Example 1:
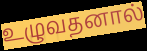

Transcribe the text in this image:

உழுவதனால்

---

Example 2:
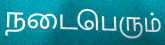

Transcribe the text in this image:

நடைபெரும்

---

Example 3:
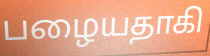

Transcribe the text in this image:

பழையதாகி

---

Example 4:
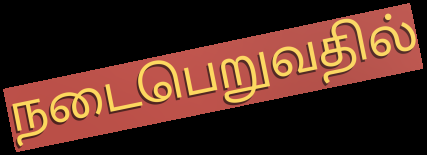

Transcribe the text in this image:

நடைபெறுவதில்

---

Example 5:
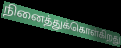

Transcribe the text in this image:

நினைத்துக்கொள்கிறது